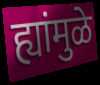
ह्यांमुळे